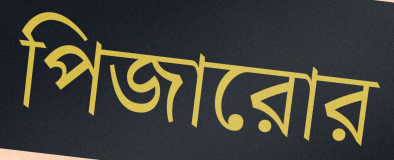
পিজারোর